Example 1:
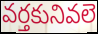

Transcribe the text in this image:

వర్తకునివలె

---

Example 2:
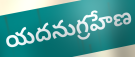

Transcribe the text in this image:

యదనుగ్రహేణ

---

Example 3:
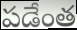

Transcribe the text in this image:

పడేంత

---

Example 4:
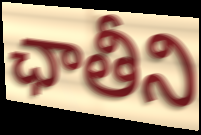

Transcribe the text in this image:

ఛాతీని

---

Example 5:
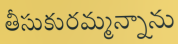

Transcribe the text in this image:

తీసుకురమ్మన్నాను